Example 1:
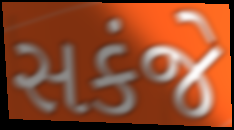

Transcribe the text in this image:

સકંજે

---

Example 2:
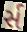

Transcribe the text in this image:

ર્સ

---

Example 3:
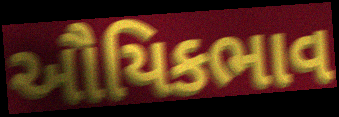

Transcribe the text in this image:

ઔયિકભાવ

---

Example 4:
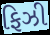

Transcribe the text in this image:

ફિઝી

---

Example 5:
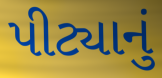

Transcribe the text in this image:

પીટ્યાનું